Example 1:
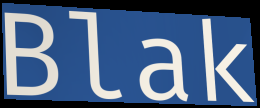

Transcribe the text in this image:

Blak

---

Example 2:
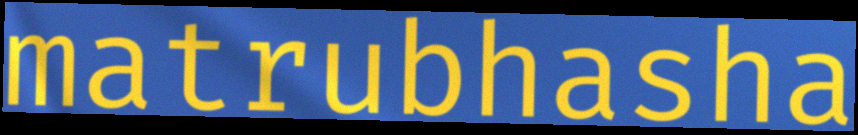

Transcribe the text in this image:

matrubhasha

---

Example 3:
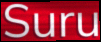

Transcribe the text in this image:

Suru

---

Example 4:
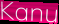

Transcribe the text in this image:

Kanu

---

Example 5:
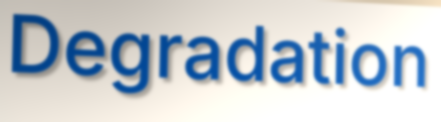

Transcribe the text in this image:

Degradation